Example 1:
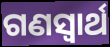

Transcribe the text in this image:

ଗଣସ୍ୱାର୍ଥ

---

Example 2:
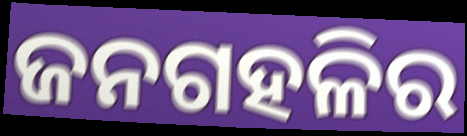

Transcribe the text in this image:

ଜନଗହଳିର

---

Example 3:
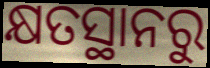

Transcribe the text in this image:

କ୍ଷତସ୍ଥାନରୁ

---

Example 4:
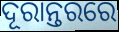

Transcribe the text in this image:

ଦୂରାନ୍ତରରେ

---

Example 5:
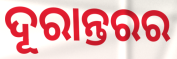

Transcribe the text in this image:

ଦୂରାନ୍ତରର